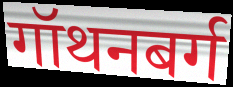
गॉथनबर्ग